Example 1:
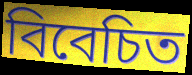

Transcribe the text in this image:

বিবেচিত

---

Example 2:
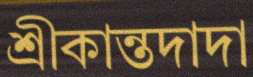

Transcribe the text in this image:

শ্রীকান্তদাদা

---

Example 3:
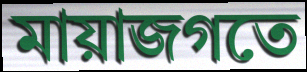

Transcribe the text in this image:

মায়াজগতে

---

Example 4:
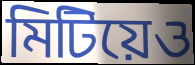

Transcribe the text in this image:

মিটিয়েও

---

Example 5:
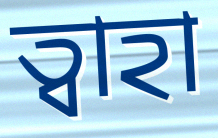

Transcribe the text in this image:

ত্বাহা